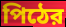
পিঠের